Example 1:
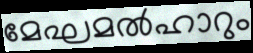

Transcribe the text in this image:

മേഘമൽഹാറും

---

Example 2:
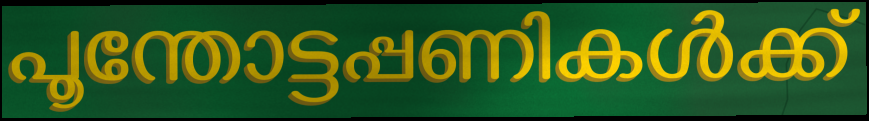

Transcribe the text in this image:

പൂന്തോട്ടപ്പണികൾക്ക്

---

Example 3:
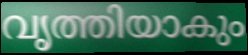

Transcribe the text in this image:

വൃത്തിയാകും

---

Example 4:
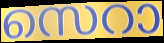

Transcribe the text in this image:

സെറാ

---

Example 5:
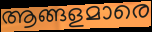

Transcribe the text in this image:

ആങ്ങളമാരെ